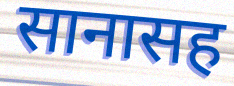
सानासह